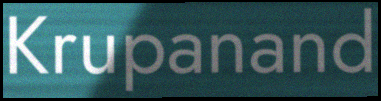
Krupanand